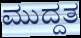
ಮುದ್ದತ